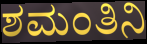
ಶಮಂತಿನಿ